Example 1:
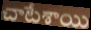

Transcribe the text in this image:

చాటేశాయి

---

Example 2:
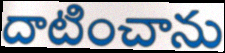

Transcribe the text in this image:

దాటించాను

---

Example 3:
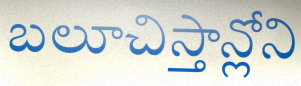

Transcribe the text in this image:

బలూచిస్తాన్లోని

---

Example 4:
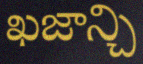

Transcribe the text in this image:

ఖజాన్చి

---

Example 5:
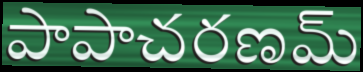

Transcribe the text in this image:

పాపాచరణమ్